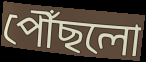
পৌঁছলো